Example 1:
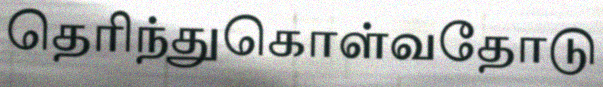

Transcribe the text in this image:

தெரிந்துகொள்வதோடு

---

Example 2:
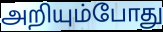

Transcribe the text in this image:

அறியும்போது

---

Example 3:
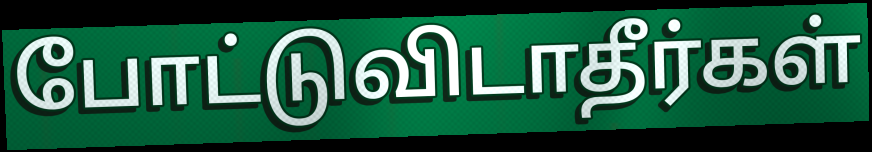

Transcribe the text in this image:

போட்டுவிடாதீர்கள்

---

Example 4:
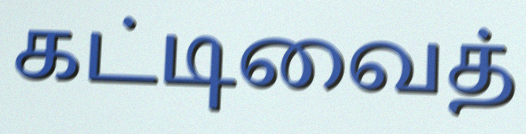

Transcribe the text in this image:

கட்டிவைத்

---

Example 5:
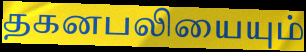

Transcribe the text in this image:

தகனபலியையும்